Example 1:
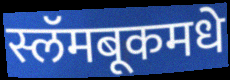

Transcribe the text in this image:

स्लॅमबूकमधे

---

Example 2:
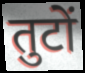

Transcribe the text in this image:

तुटों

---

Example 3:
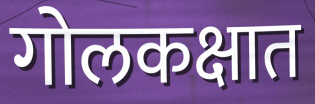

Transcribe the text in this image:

गोलकक्षात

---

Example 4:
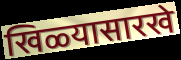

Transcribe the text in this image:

खिळ्यासारखे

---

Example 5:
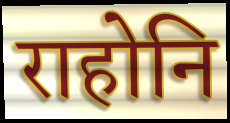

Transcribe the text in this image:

राहोनि